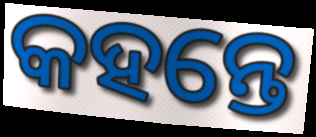
କହନ୍ତେ